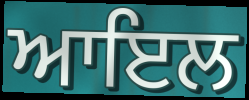
ਆਇਲ